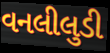
વનલીલુડી